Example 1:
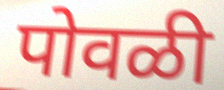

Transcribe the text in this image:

पोवळी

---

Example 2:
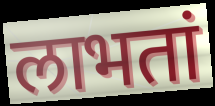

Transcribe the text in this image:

लाभतां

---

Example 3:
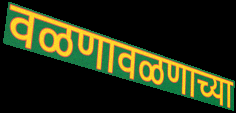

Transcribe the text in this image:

वळणावळणाच्या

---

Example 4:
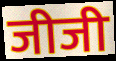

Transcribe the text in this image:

जीजी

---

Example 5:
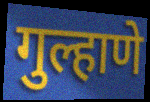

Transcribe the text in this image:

गुल्हाणे